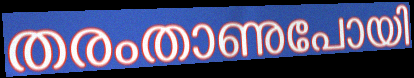
തരംതാണുപോയി